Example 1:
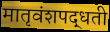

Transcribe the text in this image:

मातृवंशपद्धती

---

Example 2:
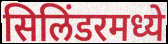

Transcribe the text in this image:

सिलिंडरमध्ये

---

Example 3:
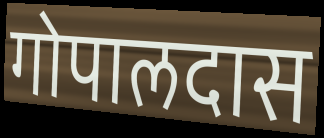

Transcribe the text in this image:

गोपालदास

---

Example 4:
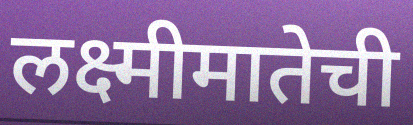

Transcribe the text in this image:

लक्ष्मीमातेची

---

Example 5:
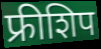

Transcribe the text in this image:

फ्रीशिप